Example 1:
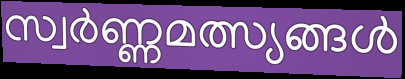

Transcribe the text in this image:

സ്വർണ്ണമത്സ്യങ്ങൾ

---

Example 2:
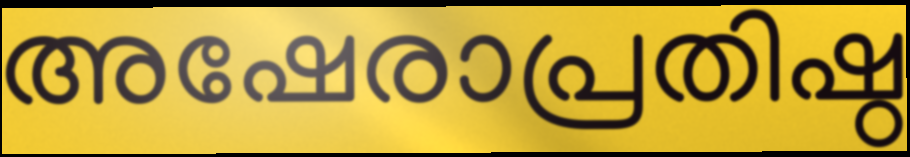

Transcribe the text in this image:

അഷേരാപ്രതിഷ്ഠ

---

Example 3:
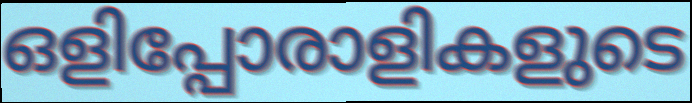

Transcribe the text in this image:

ഒളിപ്പോരാളികളുടെ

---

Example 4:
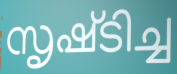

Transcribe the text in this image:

സൃഷ്‌ടിച്ച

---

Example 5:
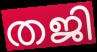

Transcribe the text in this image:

തജി